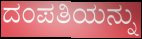
ದಂಪತಿಯನ್ನು